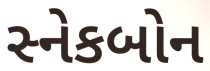
સ્નેકબોન